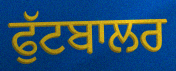
ਫੁੱਟਬਾਲਰ